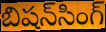
బిషన్‌సింగ్